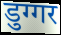
डुग्गर